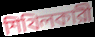
শিথিলকারী